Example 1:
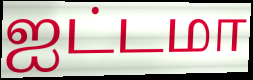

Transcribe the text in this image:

ஐட்டமா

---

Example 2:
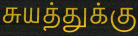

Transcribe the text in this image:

சுயத்துக்கு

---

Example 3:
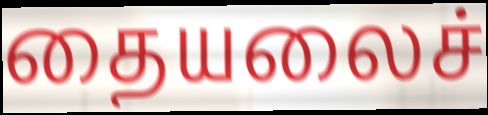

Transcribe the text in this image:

தையலைச்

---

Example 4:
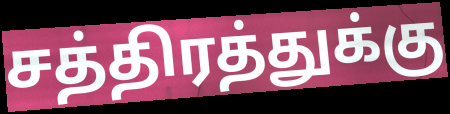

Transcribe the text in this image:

சத்திரத்துக்கு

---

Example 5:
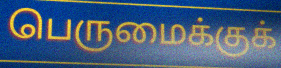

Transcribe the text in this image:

பெருமைக்குக்